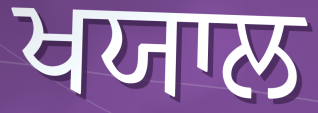
ਖਯਾਲ